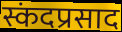
स्कंदप्रसाद